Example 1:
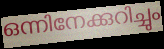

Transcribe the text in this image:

ഒന്നിനേക്കുറിച്ചും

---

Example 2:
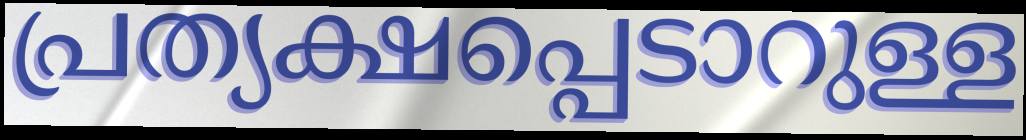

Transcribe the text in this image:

പ്രത്യക്ഷപ്പെടാറുള്ള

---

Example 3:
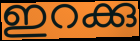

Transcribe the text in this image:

ഇറക്കു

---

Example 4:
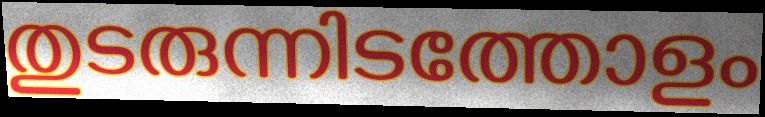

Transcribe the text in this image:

തുടരുന്നിടത്തോളം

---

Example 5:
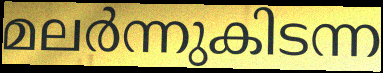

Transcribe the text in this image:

മലർന്നുകിടന്ന